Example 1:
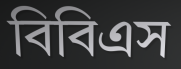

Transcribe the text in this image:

বিবিএস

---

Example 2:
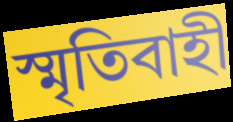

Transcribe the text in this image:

স্মৃতিবাহী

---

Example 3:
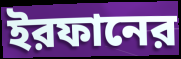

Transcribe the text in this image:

ইরফানের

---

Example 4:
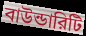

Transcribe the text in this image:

বাউন্ডারিটি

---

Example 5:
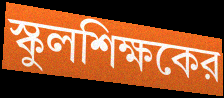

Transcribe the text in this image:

স্কুলশিক্ষকের